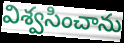
విశ్వసించాను